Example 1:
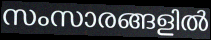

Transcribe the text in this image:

സംസാരങ്ങളിൽ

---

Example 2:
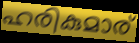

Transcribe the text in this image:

ഹരികുമാര്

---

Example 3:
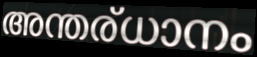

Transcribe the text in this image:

അന്തര്ധാനം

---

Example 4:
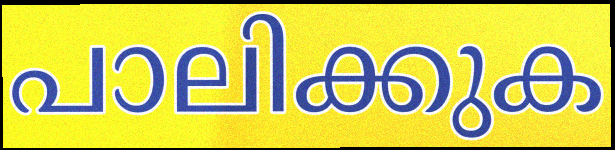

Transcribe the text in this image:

പാലിക്കുക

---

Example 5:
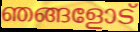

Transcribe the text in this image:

ഞങ്ങളോട്